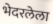
भेदरलेला